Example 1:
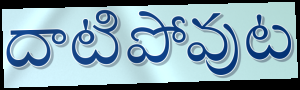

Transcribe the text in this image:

దాటిపోవుట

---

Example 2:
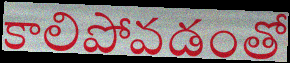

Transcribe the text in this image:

కాలిపోవడంతో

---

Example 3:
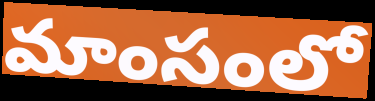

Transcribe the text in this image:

మాంసంలో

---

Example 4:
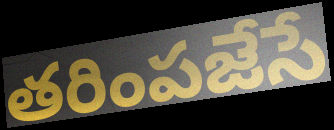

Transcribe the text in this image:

తరింపజేసే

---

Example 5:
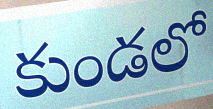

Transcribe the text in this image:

కుండలో